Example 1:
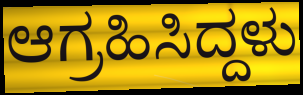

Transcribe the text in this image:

ಆಗ್ರಹಿಸಿದ್ದಳು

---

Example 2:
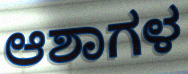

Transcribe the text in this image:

ಆಶಾಗಳ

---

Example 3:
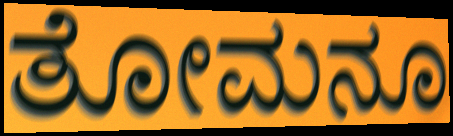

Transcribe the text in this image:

ತೋಮನೂ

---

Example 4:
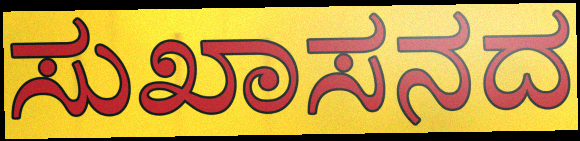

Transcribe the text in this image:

ಸುಖಾಸನದ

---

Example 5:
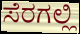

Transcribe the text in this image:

ಸೆರಗಲ್ಲಿ